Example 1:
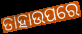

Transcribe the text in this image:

ତାହାଉପରେ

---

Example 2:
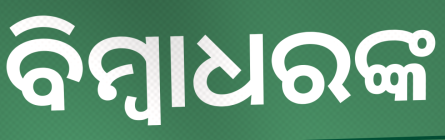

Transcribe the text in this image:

ବିମ୍ବାଧରଙ୍କ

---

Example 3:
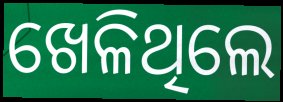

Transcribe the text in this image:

ଖେଳିଥିଲେ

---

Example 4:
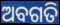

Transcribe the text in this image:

ଅବଗତି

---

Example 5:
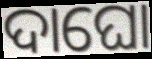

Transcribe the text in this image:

ଦାଘୋ